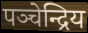
पञ्चेन्द्रिय